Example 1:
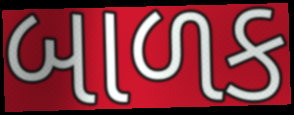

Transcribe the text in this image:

બાળક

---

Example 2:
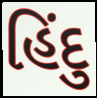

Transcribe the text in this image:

હિંદુ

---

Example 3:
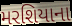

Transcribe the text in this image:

મરશિયાના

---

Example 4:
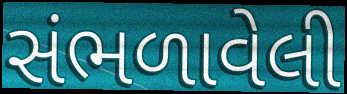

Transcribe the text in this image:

સંભળાવેલી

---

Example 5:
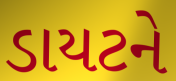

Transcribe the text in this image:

ડાયટને